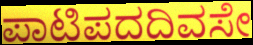
ಪಾಟಿಪದದಿವಸೇ